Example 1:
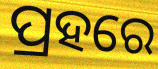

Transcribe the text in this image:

ପ୍ରହରେ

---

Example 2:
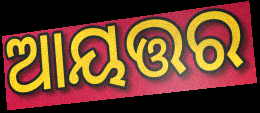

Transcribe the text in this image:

ଆୟତ୍ତର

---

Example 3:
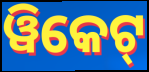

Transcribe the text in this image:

ୱିକେଟ୍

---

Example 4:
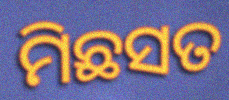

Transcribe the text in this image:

ମିଛସତ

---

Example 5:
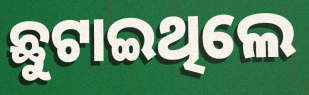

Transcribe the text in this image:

ଛୁଟାଇଥିଲେ